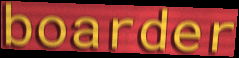
boarder